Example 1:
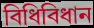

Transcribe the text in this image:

বিধিবিধান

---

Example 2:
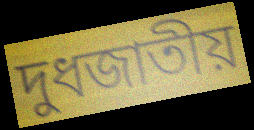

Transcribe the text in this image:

দুধজাতীয়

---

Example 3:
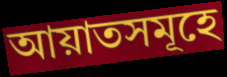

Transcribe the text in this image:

আয়াতসমূহে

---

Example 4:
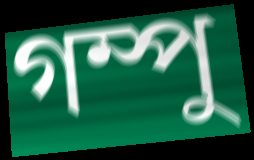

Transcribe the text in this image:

গম্পু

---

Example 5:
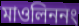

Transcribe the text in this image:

মাওলিননং